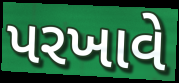
પરખાવે